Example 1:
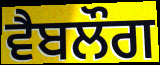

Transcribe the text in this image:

ਵੈਬਲੌਗ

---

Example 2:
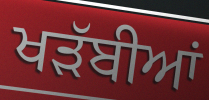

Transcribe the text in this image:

ਖੜੱਬੀਆਂ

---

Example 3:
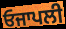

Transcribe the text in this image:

ਓਜਾਪਲੀ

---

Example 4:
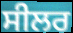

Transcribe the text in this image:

ਸੀਲਰ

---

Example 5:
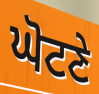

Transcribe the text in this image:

ਘੋਟਣੇ